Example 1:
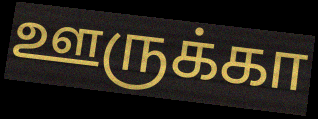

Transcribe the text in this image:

ஊருக்கா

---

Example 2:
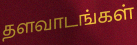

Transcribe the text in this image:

தளவாடங்கள்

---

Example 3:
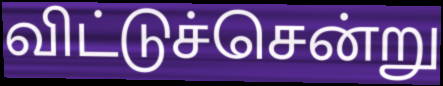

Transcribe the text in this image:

விட்டுச்சென்று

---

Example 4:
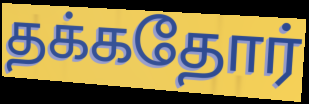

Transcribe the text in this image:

தக்கதோர்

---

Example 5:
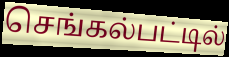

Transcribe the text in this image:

செங்கல்பட்டில்